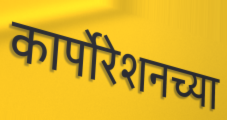
कार्पोरेशनच्या